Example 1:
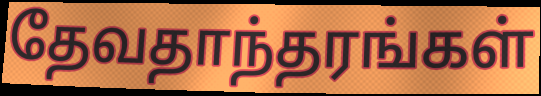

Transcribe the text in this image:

தேவதாந்தரங்கள்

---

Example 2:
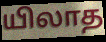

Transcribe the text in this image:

யிலாத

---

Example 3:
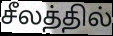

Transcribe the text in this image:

சீலத்தில்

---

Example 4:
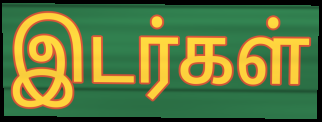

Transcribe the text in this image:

இடர்கள்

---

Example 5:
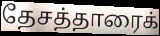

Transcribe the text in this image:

தேசத்தாரைக்